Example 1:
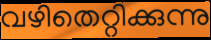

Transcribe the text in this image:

വഴിതെറ്റിക്കുന്നു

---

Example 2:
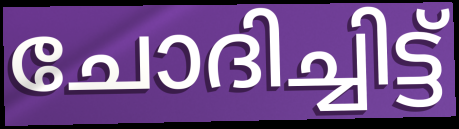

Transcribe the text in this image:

ചോദിച്ചിട്ട്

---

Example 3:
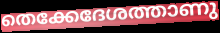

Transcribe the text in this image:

തെക്കേദേശത്താണു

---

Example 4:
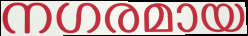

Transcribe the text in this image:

നഗരമായ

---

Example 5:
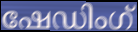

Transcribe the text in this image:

ഷേഡിംഗ്